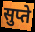
सुप्ते